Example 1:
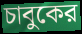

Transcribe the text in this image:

চাবুকের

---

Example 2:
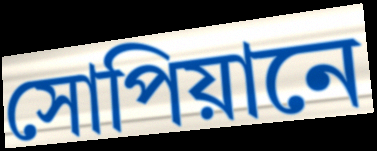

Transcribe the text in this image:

সোপিয়ানে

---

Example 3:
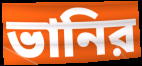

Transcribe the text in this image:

ভানির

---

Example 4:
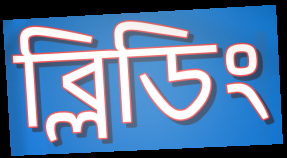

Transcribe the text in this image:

ব্লিডিং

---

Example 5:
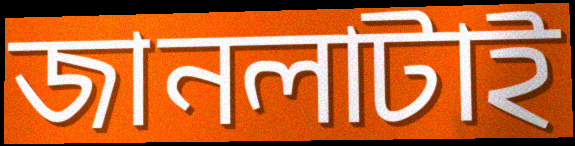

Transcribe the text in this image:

জানলাটাই